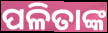
ପଳିତାଙ୍କ